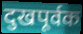
दुखपूर्वक